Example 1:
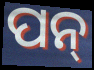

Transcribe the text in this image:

ପନ୍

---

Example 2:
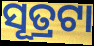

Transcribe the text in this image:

ସୂତ୍ରଟା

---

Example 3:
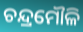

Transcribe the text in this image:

ଚନ୍ଦ୍ରମୌଳି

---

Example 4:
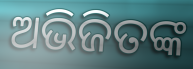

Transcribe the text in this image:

ଅଭିଜିତଙ୍କ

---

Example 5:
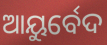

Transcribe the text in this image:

ଆୟୁର୍ବେଦ